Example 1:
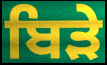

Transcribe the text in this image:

ਬਿੜੇ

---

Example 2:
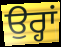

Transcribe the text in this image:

ਉਰ੍ਹਾਂ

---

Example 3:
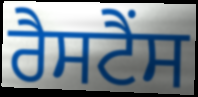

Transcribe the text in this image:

ਰੈਸਟੈਂਸ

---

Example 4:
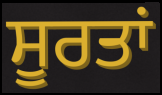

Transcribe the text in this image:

ਸੂਰਤਾਂ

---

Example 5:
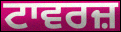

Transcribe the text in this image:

ਟਾਵਰਜ਼